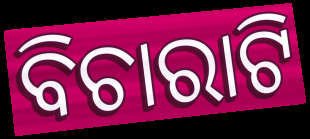
ବିଚାରାଟି